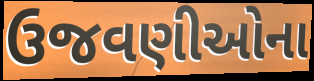
ઉજવણીઓના